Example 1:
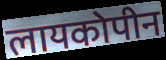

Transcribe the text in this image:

लायकोपीन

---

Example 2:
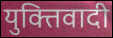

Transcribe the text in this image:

युक्तिवादी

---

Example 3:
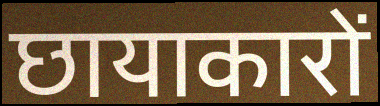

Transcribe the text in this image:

छायाकारों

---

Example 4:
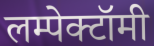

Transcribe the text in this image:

लम्पेक्टॉमी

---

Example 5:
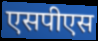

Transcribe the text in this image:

एसपीएस